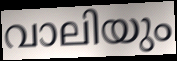
വാലിയും